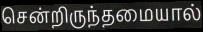
சென்றிருந்தமையால்